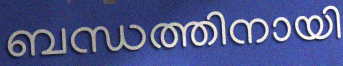
ബന്ധത്തിനായി